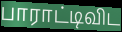
பாராட்டிவிட